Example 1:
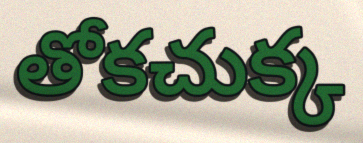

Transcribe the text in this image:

తోకచుక్క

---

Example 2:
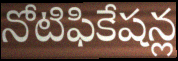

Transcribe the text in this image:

నోటిఫికేషన్ల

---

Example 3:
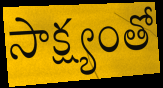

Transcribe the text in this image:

సాక్ష్యంతో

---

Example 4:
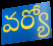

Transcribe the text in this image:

వర్యో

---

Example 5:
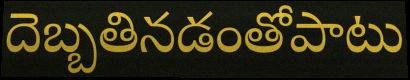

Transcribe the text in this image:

దెబ్బతినడంతోపాటు